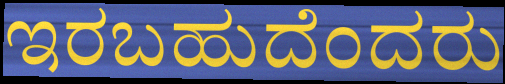
ಇರಬಹುದೆಂದರು